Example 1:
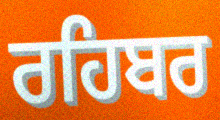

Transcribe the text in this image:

ਰਹਿਬਰ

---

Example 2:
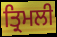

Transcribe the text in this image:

ਤ੍ਰਿਮਲੀ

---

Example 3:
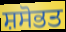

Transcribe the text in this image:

ਸ਼ਸੋਭਤ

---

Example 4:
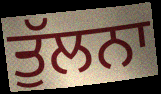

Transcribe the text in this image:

ਤੁੱਲਨਾ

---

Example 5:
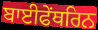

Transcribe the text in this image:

ਬਾਈਫੇਂਥਰਿਨ